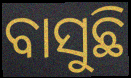
ବାସୁଛି